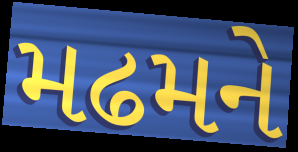
મઢમને